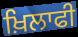
ਖ਼ਿਲਾਫੀ